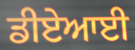
ਡੀਏਆਈ